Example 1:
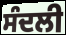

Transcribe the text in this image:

ਸੰਦਲੀ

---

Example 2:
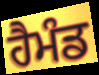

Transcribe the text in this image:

ਹੈਮੰਡ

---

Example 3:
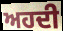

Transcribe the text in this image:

ਅਹਦੀ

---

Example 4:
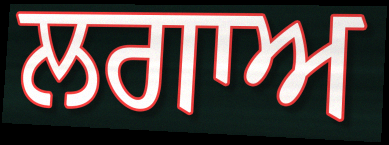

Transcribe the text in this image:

ਲਗਾਅ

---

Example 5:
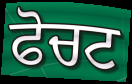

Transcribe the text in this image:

ਫੋਚਟ